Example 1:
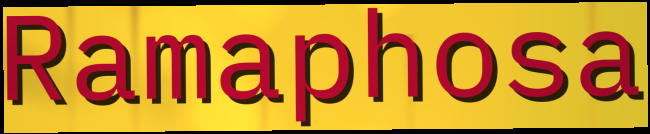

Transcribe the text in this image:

Ramaphosa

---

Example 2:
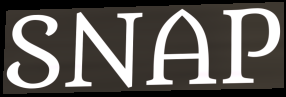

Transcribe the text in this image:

SNAP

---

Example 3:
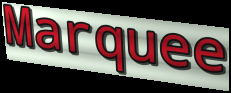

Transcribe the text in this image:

Marquee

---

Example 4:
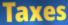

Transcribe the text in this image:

Taxes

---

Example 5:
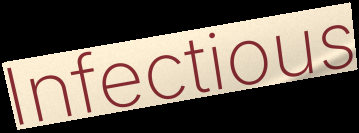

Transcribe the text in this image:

Infectious